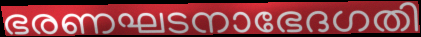
ഭരണഘടനാഭേദഗതി